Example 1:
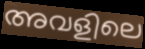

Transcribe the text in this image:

അവളിലെ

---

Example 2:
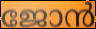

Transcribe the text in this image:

ജോൻ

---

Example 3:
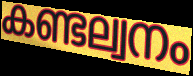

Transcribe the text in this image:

കണ്ടല്വനം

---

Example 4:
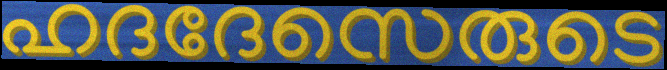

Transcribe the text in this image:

ഹദദേസെരുടെ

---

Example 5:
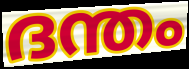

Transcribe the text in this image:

ദന്തം